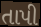
તાપી